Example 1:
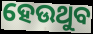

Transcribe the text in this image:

ହେଉଥୁବ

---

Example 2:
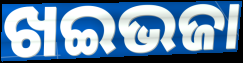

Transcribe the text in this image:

ଖଇଭଜା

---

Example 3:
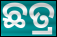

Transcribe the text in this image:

ଛତ୍ର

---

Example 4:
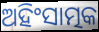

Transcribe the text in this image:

ଅହିଂସାତ୍ମକ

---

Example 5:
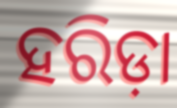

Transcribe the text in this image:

ହରିଡ଼ା